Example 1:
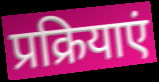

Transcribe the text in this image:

प्रक्रियाएं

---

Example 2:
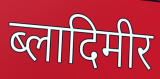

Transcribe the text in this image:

ब्लादिमीर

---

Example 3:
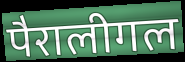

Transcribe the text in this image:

पैरालीगल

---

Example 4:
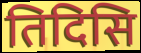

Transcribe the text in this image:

तिदिसि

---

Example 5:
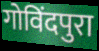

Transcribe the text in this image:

गोविंदपुरा